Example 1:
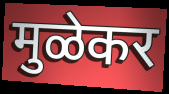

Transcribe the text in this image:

मुळेकर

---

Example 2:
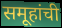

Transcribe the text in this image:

समूहांची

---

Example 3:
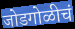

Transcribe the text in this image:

जोडगोळीचं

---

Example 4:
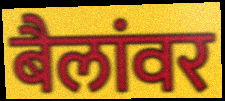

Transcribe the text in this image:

बैलांवर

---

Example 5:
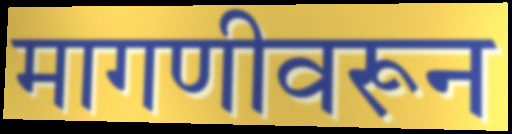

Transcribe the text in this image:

मागणीवरून